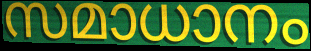
സമാധാനം